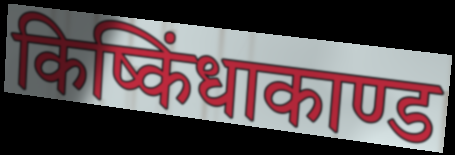
किष्किंधाकाण्ड